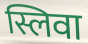
स्लिवा